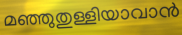
മഞ്ഞുതുള്ളിയാവാൻ